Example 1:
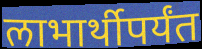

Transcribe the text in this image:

लाभार्थीपर्यंत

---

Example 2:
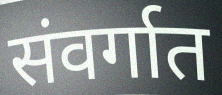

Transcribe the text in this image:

संवर्गात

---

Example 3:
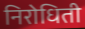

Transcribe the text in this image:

निरोधिती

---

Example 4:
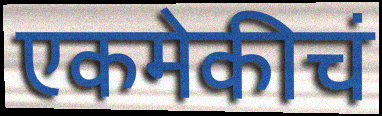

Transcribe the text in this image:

एकमेकीचं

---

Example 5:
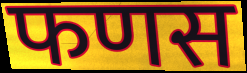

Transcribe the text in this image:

फणस